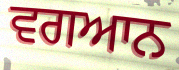
ਵਗਆਨ